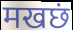
मखछं